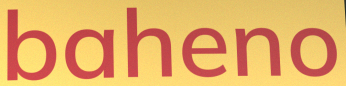
baheno